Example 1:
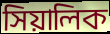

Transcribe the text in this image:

সিয়ালিক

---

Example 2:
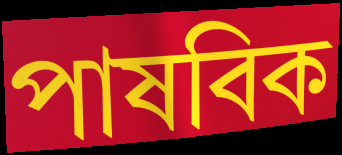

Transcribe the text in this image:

পাষবিক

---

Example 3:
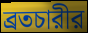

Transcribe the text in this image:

ব্রতচারীর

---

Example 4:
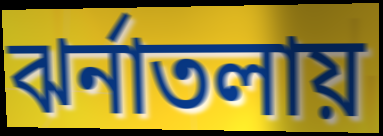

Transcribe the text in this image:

ঝর্নাতলায়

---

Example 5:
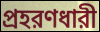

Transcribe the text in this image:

প্রহরণধারী